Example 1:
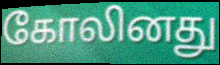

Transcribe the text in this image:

கோலினது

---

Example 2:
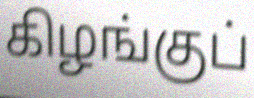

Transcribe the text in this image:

கிழங்குப்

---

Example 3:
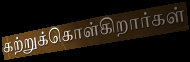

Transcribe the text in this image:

கற்றுக்கொள்கிறார்கள்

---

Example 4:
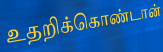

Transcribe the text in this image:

உதறிக்கொண்டான்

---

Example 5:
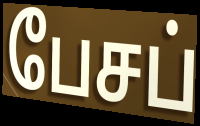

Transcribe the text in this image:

பேசப்